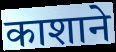
काशाने